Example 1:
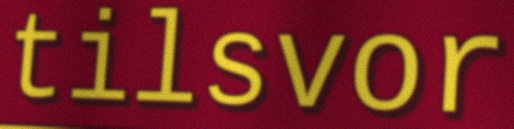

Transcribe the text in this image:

tilsvor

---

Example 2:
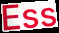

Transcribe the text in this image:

Ess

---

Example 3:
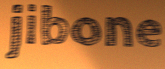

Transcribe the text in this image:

jibone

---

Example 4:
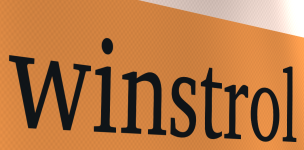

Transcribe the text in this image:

winstrol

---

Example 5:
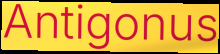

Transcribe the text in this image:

Antigonus